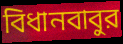
বিধানবাবুর